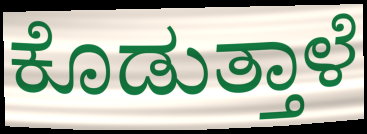
ಕೊಡುತ್ತಾಳೆ